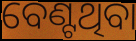
ବେଣ୍ଟଥିବା